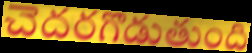
చెదరగొడుతుంది